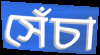
সেঁচা